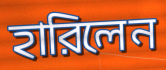
হারিলেন